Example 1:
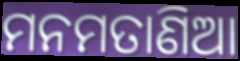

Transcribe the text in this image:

ମନମତାଣିଆ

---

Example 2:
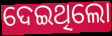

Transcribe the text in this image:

ଦେଇଥିଲୋ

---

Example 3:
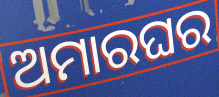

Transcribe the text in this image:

ଅମାରଘର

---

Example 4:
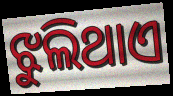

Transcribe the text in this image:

ଝୁଲିଥାଏ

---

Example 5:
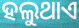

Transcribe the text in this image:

ହଲୁଥାଏ